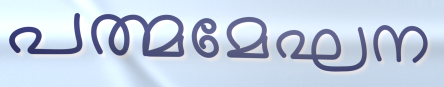
പത്മമേഘന